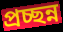
প্রচ্ছন্ন